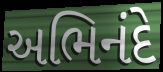
અભિનંદે